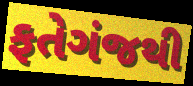
ફતેગંજથી